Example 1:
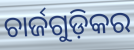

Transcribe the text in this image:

ଚାର୍ଜଗୁଡ଼ିକର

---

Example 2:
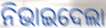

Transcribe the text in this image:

ନିଭାଇଦେଲା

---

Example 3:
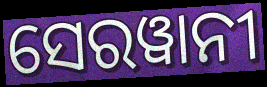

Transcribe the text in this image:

ସେରୱାନୀ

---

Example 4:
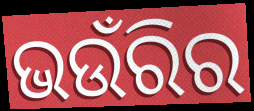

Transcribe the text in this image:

ଭଉଁରିର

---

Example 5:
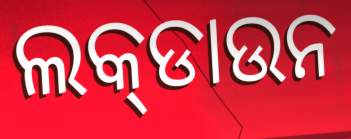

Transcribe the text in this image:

ଲକ୍‍ଡାଉନ